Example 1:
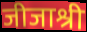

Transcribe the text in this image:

जीजाश्री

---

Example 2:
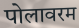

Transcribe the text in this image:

पोलावरम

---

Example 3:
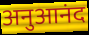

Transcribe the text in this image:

अनुआनंद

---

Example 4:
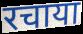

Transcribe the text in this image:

रचाया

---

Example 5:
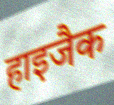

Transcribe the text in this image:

हाइजैक